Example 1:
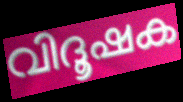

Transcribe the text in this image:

വിദൂഷക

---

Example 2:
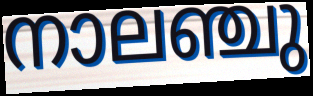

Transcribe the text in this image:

നാലഞ്ചു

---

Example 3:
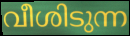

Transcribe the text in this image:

വീശിടുന്ന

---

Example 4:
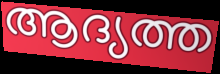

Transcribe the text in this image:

ആദ്യത്ത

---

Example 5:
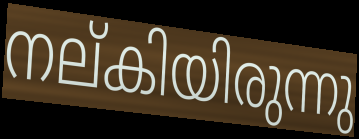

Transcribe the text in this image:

നല്കിയിരുന്നു